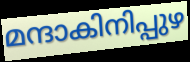
മന്ദാകിനിപ്പുഴ